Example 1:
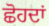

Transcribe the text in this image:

ਛੋਹਦਾਂ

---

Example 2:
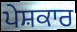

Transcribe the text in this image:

ਪੇਸ਼ਕਾਰ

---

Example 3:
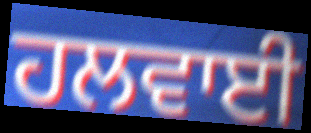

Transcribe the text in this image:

ਹਲਵਾਈ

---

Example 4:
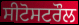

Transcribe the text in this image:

ਸੀਟੋਸਟਰੌਲ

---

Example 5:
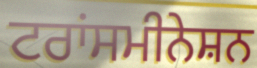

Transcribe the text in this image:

ਟਰਾਂਸਮੀਨੇਸ਼ਨ